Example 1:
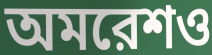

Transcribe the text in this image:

অমরেশও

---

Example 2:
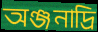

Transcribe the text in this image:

অঞ্জনাদ্রি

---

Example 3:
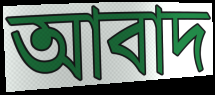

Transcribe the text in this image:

আবাদ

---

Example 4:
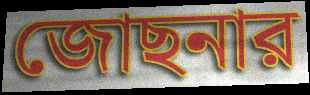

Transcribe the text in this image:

জোছনার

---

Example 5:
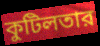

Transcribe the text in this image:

কুটিলতার